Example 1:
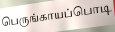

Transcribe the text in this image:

பெருங்காயப்பொடி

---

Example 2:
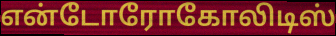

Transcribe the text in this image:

என்டோரோகோலிடிஸ்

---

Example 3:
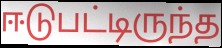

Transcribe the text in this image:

ஈடுபட்டிருந்த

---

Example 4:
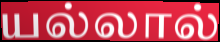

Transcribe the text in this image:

யல்லால்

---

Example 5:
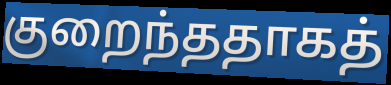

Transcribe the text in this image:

குறைந்ததாகத்